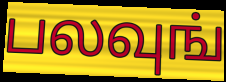
பலவுங்